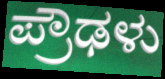
ಪ್ರೌಢಳು